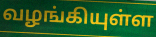
வழங்கியுள்ள